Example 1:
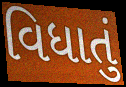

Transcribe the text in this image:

વિધાતું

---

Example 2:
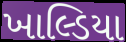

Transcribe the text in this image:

ખાલ્ડિયા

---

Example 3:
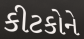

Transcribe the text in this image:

કીટકોને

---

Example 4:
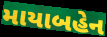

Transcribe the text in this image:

માયાબહેન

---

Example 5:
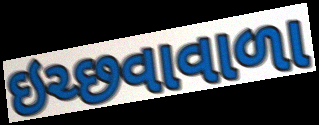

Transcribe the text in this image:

ઇચ્છવાવાળા